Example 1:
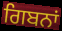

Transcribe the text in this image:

ਗਿਬਨਾਂ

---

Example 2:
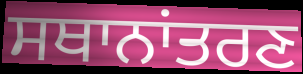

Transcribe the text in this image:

ਸਥਾਨਾਂਤਰਣ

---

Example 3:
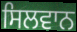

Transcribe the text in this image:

ਸਿਲਵਾਨ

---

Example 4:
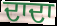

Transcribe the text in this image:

ਦਾਦਾ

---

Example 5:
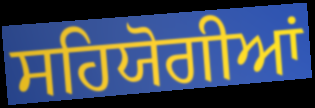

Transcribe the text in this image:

ਸਹਿਯੋਗੀਆਂ